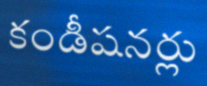
కండీషనర్లు